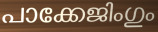
പാക്കേജിംഗും